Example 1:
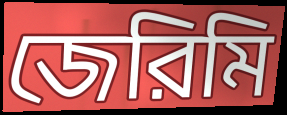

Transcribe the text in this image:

জেরিমি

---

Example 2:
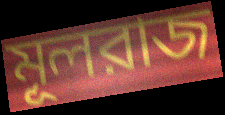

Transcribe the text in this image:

মূলরাজ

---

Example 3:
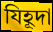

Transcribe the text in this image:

যিহূদা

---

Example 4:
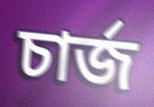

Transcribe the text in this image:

চার্জ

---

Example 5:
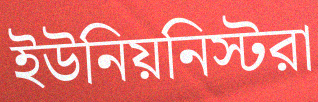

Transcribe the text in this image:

ইউনিয়নিস্টরা